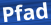
Pfad